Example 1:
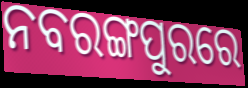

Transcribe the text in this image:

ନବରଙ୍ଗପୁରରେ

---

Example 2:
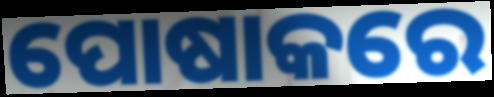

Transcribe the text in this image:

ପୋଷାକରେ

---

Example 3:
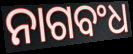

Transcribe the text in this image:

ନାଗବଂଧ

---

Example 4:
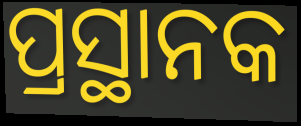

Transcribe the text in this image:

ପ୍ରସ୍ଥାନକ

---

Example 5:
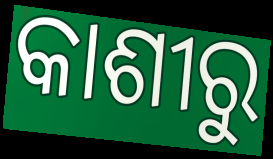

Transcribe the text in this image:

କାଶୀରୁ